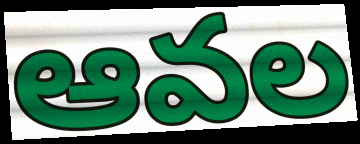
ఆవల